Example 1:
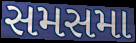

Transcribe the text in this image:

સમસમા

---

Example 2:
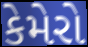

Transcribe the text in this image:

કેમેરો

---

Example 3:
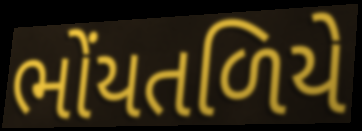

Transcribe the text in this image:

ભોંયતળિયે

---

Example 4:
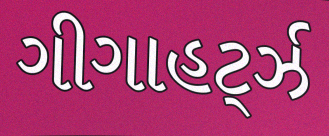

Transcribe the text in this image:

ગીગાહર્ટ્ઝ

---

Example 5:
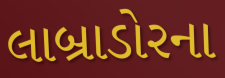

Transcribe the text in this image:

લાબ્રાડોરના